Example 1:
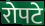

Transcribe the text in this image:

रोपटे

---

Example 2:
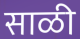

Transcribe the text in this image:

साळी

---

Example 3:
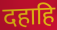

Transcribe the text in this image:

दहाहि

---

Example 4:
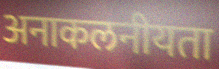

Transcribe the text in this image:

अनाकलनीयता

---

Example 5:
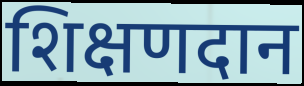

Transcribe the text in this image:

शिक्षणदान